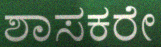
ಶಾಸಕರೇ